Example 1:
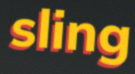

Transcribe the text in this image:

sling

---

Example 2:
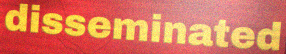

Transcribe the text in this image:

disseminated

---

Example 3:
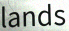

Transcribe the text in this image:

lands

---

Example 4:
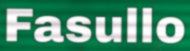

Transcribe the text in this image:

Fasullo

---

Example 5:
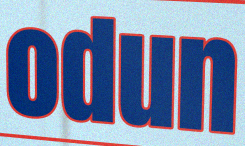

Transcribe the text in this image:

odun